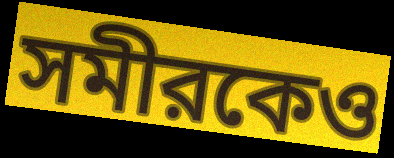
সমীরকেও